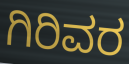
ಗಿರಿವರ